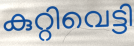
കുറ്റിവെട്ടി